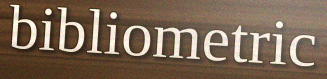
bibliometric